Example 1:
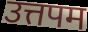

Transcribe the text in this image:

उत्तपम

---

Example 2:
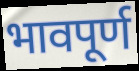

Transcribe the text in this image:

भावपूर्ण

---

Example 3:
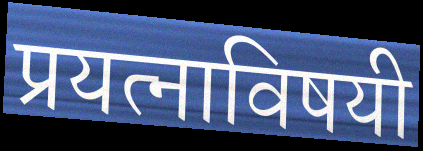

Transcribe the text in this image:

प्रयत्नाविषयी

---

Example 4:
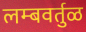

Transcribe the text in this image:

लम्बवर्तुळ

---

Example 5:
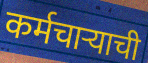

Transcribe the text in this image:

कर्मचाऱ्याची